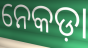
ନେକଡ଼ା